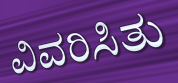
ವಿವರಿಸಿತು